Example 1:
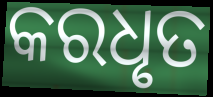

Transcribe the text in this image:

କରଧୃତ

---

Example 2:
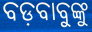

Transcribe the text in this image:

ବଡ଼ବାବୁଙ୍କୁ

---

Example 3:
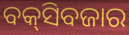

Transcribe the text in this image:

ବକ୍‍ସିବଜାର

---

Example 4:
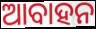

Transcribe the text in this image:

ଆବାହନ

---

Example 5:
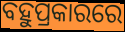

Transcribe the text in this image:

ବହୁପ୍ରକାରରେ